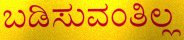
ಬಡಿಸುವಂತಿಲ್ಲ